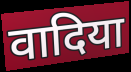
वादिया